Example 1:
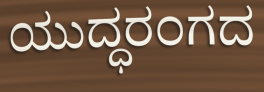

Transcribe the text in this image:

ಯುದ್ಧರಂಗದ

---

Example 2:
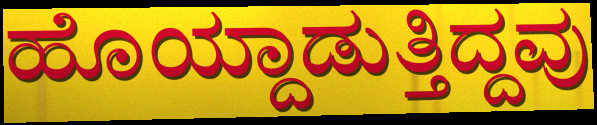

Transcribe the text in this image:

ಹೊಯ್ದಾಡುತ್ತಿದ್ದವು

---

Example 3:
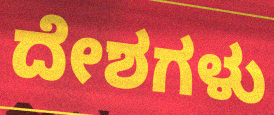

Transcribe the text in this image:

ದೇಶಗಳು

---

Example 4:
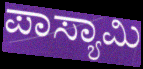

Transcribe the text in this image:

ಪಾಸ್ಯಾಮಿ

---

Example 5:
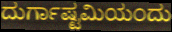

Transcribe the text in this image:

ದುರ್ಗಾಷ್ಟಮಿಯಂದು